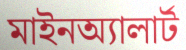
মাইনঅ্যালার্ট